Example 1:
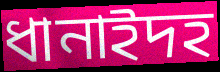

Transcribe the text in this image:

ধানাইদহ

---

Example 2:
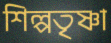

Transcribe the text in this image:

শিল্পতৃষ্ণা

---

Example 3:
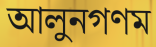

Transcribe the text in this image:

আলুনগণম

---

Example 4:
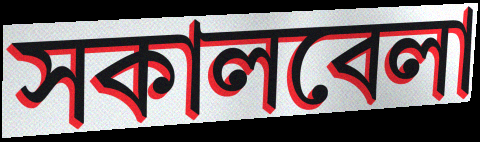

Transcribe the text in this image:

সকালবেলা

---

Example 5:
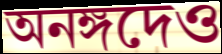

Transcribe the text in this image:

অনঙ্গদেও